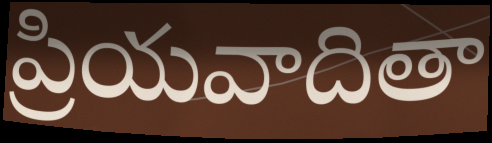
ప్రియవాదితా